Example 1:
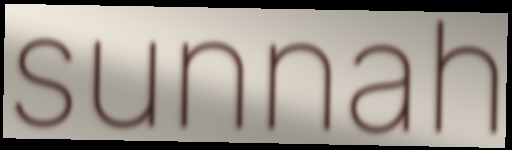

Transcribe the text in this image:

sunnah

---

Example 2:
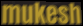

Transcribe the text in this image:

mukesh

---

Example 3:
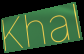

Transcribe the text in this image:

Khal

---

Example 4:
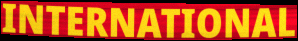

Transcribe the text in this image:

INTERNATIONAL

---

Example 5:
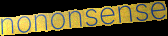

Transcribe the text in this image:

nononsense